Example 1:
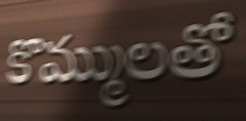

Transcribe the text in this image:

కొమ్ములతో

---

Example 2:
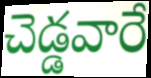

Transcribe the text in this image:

చెడ్డవారే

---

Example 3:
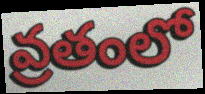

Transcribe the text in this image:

వ్రతంలో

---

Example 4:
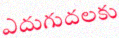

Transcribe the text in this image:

ఎదుగుదలకు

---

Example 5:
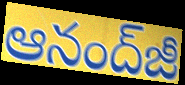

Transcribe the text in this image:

ఆనంద్‌జీ